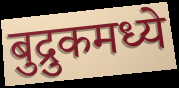
बुद्रुकमध्ये